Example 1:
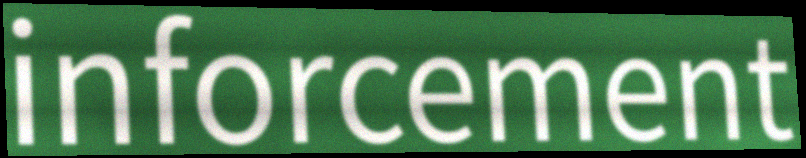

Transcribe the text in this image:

inforcement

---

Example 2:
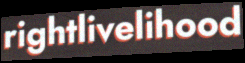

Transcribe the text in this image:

rightlivelihood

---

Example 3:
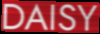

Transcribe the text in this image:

DAISY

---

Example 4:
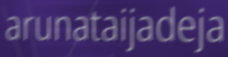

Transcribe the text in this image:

arunataijadeja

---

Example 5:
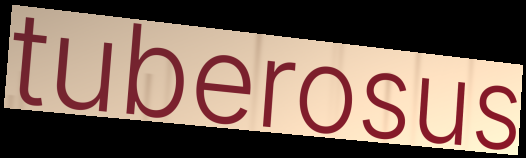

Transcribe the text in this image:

tuberosus